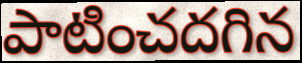
పాటించదగిన